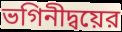
ভগিনীদ্বয়ের